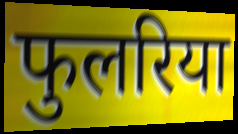
फुलरिया